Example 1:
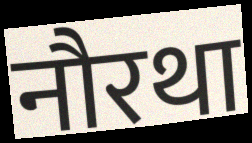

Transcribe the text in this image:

नौरथा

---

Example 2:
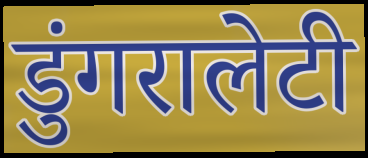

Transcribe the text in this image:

डुंगरालेटी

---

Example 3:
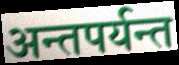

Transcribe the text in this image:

अन्तपर्यन्त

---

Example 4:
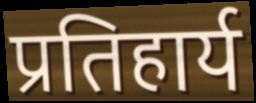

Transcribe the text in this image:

प्रतिहार्य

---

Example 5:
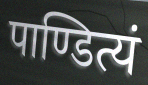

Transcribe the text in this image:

पाण्डित्यं